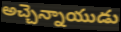
అచ్చెన్నాయుడు